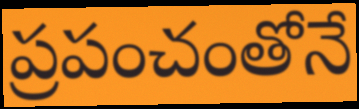
ప్రపంచంతోనే